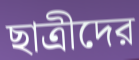
ছাত্রীদের